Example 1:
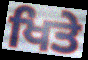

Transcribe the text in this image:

ਖਿਤੇ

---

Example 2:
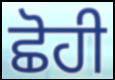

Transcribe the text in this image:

ਛੋਹੀ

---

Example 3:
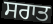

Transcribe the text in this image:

ਸਰਾਤ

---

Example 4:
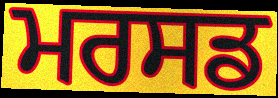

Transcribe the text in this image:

ਮਰਸਡ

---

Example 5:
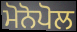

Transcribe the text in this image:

ਮੋਨੋਪੋਲ